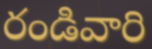
రండివారి